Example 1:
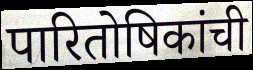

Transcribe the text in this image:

पारितोषिकांची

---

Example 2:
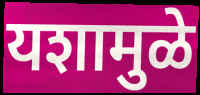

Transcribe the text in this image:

यशामुळे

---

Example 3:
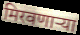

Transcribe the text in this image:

मिरवणाऱ्या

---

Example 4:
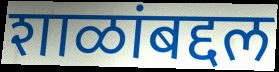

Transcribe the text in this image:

शाळांबद्दल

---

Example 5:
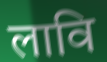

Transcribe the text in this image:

लावि